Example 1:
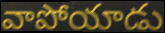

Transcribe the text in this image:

వాపోయాడు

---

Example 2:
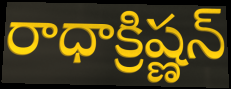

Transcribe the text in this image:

రాధాక్రిష్ణన్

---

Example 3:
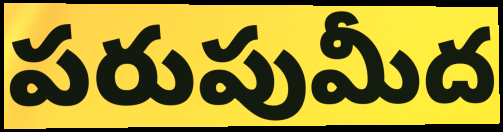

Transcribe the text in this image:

పరుపుమీద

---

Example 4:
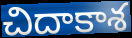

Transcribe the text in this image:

చిదాకాశ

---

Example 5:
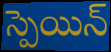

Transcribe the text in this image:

స్పెయిన్